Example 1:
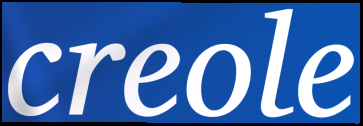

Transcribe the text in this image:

creole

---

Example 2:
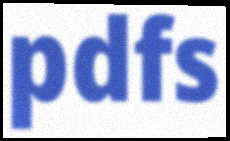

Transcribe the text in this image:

pdfs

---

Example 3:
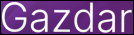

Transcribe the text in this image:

Gazdar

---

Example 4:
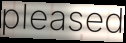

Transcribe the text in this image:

pleased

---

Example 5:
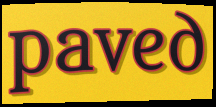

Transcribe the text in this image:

paved